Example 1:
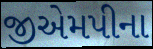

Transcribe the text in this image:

જીએમપીના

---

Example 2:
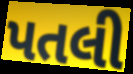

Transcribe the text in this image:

પતલી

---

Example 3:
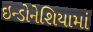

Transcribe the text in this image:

ઇન્ડોનેશિયામાં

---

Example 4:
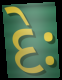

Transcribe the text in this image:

દેઃ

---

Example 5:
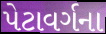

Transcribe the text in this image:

પેટાવર્ગના